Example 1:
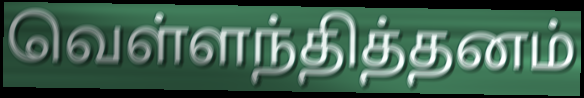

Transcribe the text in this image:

வெள்ளந்தித்தனம்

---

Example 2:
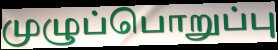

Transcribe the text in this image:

முழுப்பொறுப்பு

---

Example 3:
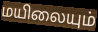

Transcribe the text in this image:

மயிலையும்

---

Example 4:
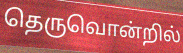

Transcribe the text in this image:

தெருவொன்றில்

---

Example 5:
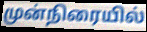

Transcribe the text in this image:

முன்நிரையில்